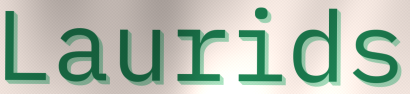
Laurids